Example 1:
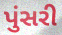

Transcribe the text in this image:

પુંસરી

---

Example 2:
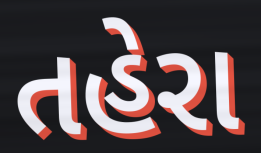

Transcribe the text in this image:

તહેરા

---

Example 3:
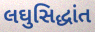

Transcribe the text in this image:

લઘુસિદ્ધાંત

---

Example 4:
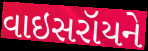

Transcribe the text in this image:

વાઇસરૉયને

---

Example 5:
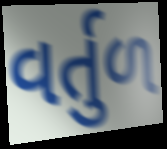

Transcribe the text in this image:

વર્તુળ